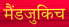
मैंडजुकिच